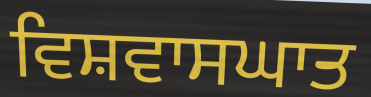
ਵਿਸ਼ਵਾਸਘਾਤ